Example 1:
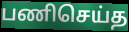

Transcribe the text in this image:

பணிசெய்த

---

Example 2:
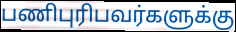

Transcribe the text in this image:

பணிபுரிபவர்களுக்கு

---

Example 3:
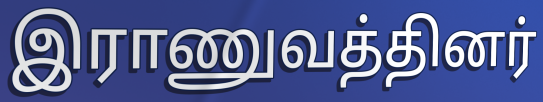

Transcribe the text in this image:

இராணுவத்தினர்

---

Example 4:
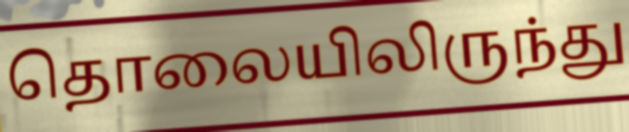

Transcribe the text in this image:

தொலையிலிருந்து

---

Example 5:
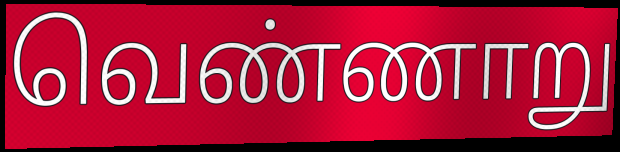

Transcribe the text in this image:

வெண்ணாறு